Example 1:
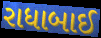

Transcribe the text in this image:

રાધાબાઈ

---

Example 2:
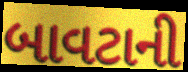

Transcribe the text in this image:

બાવટાની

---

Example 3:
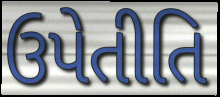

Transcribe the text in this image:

ઉપેતીતિ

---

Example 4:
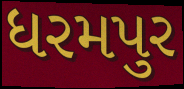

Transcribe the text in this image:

ધરમપુર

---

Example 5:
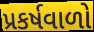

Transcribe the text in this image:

પ્રકર્ષવાળો